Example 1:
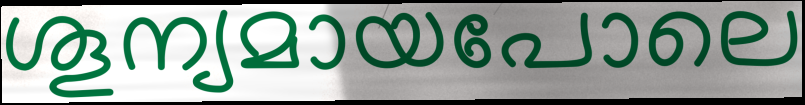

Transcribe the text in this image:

ശൂന്യമായപോലെ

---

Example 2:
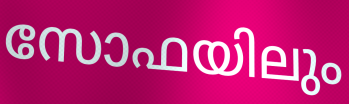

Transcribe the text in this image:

സോഫയിലും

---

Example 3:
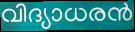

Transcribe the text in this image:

വിദ്യാധരൻ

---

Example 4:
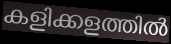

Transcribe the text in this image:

കളിക്കളത്തിൽ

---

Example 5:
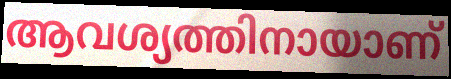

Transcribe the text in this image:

ആവശ്യത്തിനായാണ്